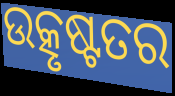
ଉତ୍କୃଷ୍ଟତର